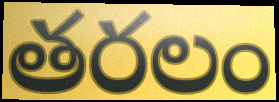
తరలం